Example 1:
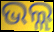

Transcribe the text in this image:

ଭଲ୍ଲ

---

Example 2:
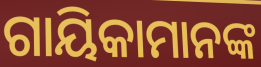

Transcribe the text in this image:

ଗାୟିକାମାନଙ୍କ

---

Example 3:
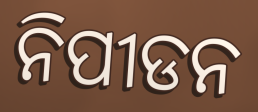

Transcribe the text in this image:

ନିପୀଡନ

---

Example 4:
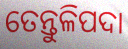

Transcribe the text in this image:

ତେନ୍ତୁଳିପଦା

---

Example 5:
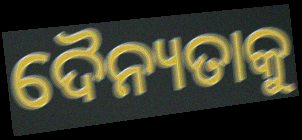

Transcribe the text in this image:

ଦୈନ୍ୟତାକୁ